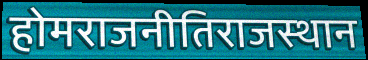
होमराजनीतिराजस्थान